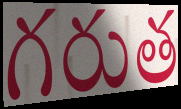
గరుత